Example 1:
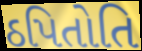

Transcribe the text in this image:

ઠપિતોતિ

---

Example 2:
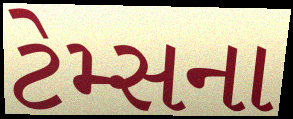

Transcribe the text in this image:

ટેમ્સના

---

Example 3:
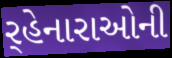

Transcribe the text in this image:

ર્‌હેનારાઓની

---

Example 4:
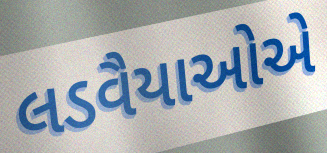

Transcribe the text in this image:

લડવૈયાઓએ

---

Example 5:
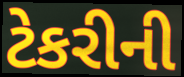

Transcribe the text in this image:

ટેકરીની